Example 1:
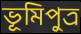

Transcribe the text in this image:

ভূমিপুত্ৰ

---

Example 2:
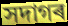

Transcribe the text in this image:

সদাগৰ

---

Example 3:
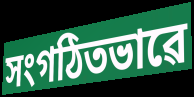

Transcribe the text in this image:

সংগঠিতভাৱে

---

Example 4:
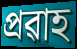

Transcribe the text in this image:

প্ৰৱাহ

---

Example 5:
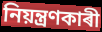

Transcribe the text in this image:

নিয়ন্ত্ৰণকাৰী